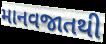
માનવજાતથી